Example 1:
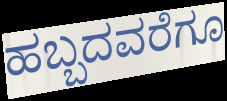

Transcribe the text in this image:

ಹಬ್ಬದವರೆಗೂ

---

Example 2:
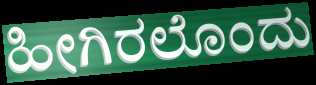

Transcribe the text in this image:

ಹೀಗಿರಲೊಂದು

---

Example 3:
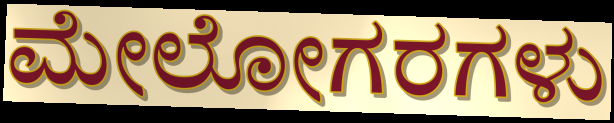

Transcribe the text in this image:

ಮೇಲೋಗರಗಳು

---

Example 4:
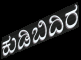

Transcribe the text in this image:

ಕುಡಿಬಿದಿರ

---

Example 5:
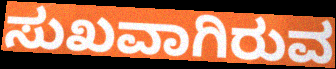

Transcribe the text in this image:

ಸುಖವಾಗಿರುವ